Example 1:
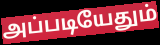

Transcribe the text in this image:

அப்படியேதும்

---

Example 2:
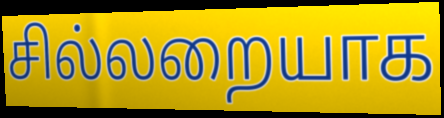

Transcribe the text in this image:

சில்லறையாக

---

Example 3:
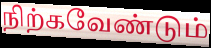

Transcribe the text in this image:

நிற்கவேண்டும்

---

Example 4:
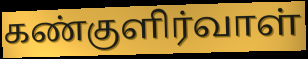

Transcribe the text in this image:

கண்குளிர்வாள்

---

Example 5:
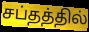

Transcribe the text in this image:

சப்தத்தில்